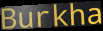
Burkha